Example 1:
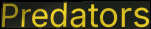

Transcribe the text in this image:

Predators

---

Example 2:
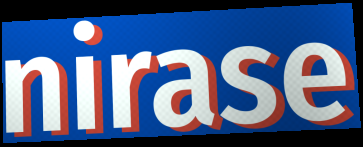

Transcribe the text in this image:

nirase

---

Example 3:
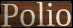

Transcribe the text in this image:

Polio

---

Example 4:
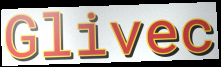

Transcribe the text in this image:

Glivec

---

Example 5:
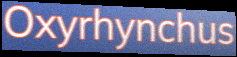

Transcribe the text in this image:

Oxyrhynchus